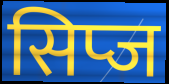
सिप्ज